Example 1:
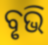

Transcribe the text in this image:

ବୃଭି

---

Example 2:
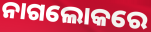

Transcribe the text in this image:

ନାଗଲୋକରେ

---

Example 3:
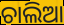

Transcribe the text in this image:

ଚାଲିଆ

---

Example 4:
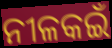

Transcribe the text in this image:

ନୀଳକଇଁ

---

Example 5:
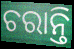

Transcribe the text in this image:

ଚରାନ୍ତି